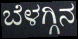
ಬೆಳಗ್ಗಿನ